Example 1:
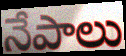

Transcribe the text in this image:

నేపాలు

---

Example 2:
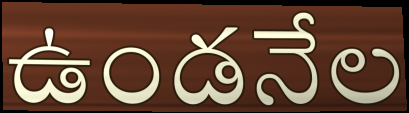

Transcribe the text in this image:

ఉండనేల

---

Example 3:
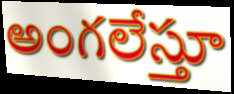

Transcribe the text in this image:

అంగలేస్తూ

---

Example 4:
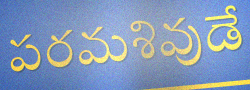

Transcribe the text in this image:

పరమశివుడే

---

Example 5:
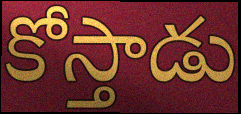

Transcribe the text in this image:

కోస్తాడు